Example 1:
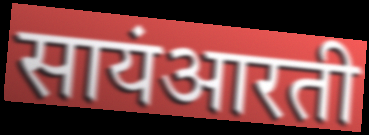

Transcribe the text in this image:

सायंआरती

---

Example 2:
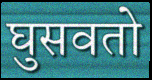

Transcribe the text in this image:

घुसवतो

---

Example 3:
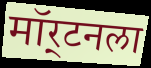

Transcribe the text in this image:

मॉर्टनला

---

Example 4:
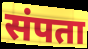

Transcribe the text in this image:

संपता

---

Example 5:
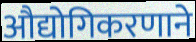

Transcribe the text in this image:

औद्योगिकरणाने